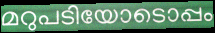
മറുപടിയോടൊപ്പം